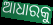
ଆଧାରକୁ